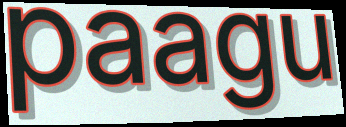
paagu